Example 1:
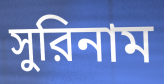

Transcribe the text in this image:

সুরিনাম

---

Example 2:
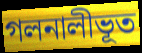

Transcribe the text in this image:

গলনালীভূত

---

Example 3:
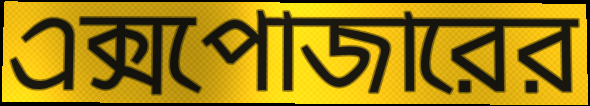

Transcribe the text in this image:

এক্সপোজারের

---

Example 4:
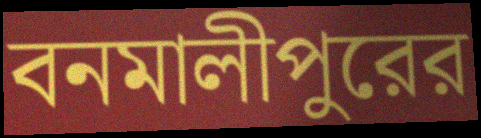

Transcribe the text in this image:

বনমালীপুরের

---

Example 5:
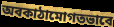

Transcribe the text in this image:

অবকাঠামোগতভাবে